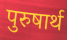
पुरुषार्थ